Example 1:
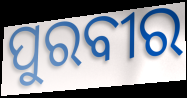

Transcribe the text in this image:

ପୁରବୀର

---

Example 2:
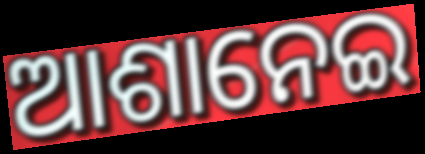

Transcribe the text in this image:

ଆଶାନେଇ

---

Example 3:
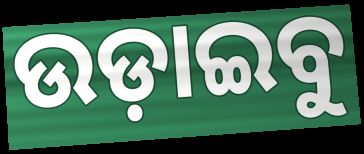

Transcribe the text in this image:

ଉଡ଼ାଇବୁ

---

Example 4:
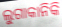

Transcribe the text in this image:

ଲୁଗାକାନିକି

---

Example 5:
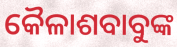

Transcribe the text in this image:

କୈଳାଶବାବୁଙ୍କ